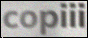
copiii